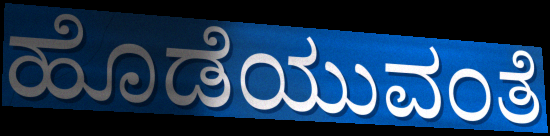
ಹೊಡೆಯುವಂತೆ